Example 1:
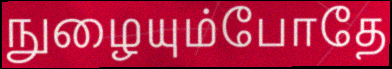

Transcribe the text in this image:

நுழையும்போதே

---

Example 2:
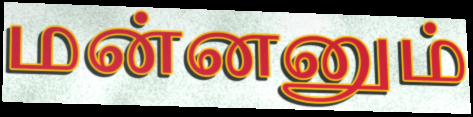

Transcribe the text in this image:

மன்னனும்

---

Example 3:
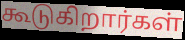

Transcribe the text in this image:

கூடுகிறார்கள்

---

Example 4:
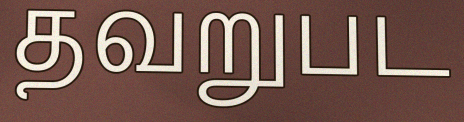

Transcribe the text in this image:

தவறுபட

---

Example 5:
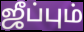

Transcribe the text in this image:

ஜீப்பும்